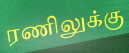
ரணிலுக்கு